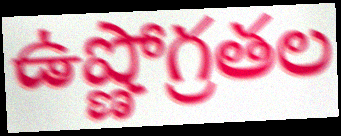
ఉష్ణోగ్రతల